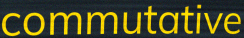
commutative